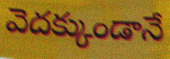
వెదక్కుండానే